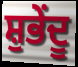
ਸ਼ੁਭੇਂਦੂ